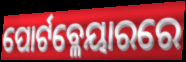
ପୋର୍ଟବ୍ଳେୟାରରେ